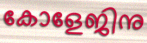
കോളേജിനു